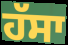
ਹੱਸਾ